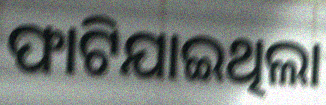
ଫାଟିଯାଇଥିଲା